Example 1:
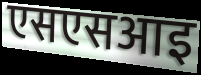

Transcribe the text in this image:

एसएसआइ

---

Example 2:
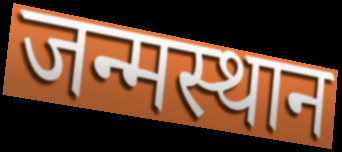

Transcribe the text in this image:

जन्मस्थान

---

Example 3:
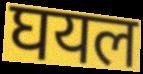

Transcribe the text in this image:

घयल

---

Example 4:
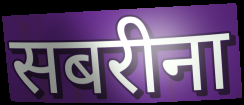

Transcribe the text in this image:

सबरीना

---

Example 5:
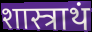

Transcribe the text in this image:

शास्त्राथं